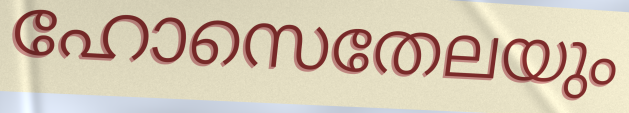
ഹോസെതേലയും